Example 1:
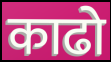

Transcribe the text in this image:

काढो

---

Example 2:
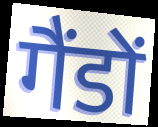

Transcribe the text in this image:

गैंडों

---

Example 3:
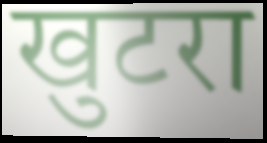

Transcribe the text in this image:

खुटरा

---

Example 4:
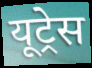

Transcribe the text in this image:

यूट्रेस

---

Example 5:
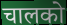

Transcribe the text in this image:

चालको